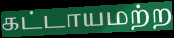
கட்டாயமற்ற